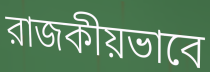
রাজকীয়ভাবে